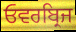
ਓਵਰਬ੍ਰਿਜ